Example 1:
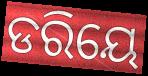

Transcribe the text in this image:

ଡରିୟେ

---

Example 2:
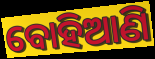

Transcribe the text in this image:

ବୋହିଆଣି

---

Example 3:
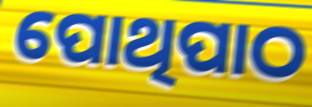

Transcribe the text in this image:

ପୋଥିପାଠ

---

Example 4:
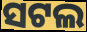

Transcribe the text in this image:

ସଟଲ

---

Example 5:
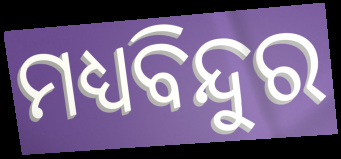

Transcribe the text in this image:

ମଧ୍ୟବିନ୍ଦୁର